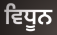
ਵਿਧੂਨ